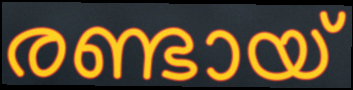
രണ്ടായ്